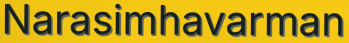
Narasimhavarman